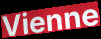
Vienne